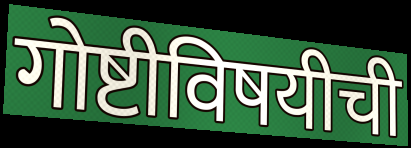
गोष्टीविषयीची